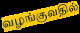
வழங்குவதில்